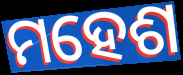
ମହେଶ